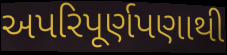
અપરિપૂર્ણપણાથી